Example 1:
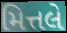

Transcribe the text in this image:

મિત્તલે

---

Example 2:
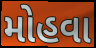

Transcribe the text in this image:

મોહવા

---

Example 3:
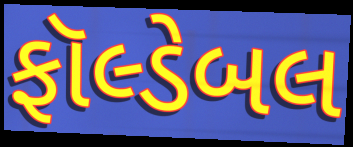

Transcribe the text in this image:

ફૉલ્ડેબલ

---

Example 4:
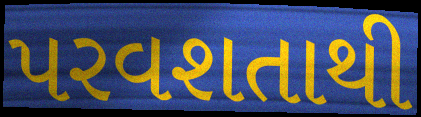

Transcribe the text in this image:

પરવશતાથી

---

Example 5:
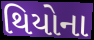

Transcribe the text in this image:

થિયોના